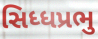
સિધ્ધપ્રભુ